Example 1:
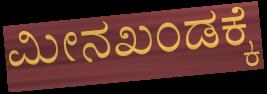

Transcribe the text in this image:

ಮೀನಖಂಡಕ್ಕೆ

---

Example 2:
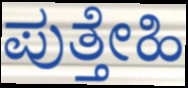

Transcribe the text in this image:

ಪುತ್ತೇಹಿ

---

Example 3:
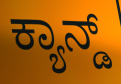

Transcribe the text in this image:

ಕ್ಯಾನ್ಡ್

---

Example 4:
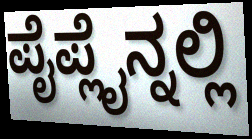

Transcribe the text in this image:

ಪೈಪ್ಲೈನ್ನಲ್ಲಿ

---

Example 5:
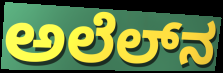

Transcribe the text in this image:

ಅಲೆಲ್‌ನ